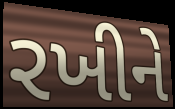
રખીને